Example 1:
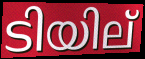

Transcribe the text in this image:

ടിയില്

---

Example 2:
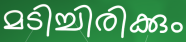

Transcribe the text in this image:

മടിച്ചിരിക്കും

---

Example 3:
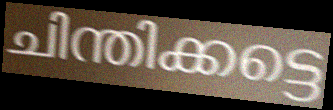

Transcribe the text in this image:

ചിന്തിക്കട്ടെ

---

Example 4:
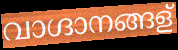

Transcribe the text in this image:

വാഗ്ദാനങ്ങള്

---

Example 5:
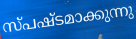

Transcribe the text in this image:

സ്പഷ്ടമാക്കുന്നു